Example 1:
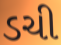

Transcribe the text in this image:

ડચી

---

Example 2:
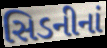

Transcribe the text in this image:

સિડનીનાં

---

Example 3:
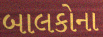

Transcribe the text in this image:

બાલકોના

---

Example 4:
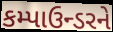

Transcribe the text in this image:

કમ્પાઉન્ડરને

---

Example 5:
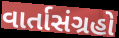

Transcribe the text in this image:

વાર્તાસંગ્રહો